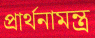
প্রার্থনামন্ত্র